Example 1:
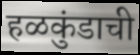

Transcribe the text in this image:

हळकुंडाची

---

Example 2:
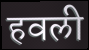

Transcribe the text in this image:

हवली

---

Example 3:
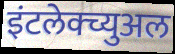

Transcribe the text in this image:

इंटलेक्च्युअल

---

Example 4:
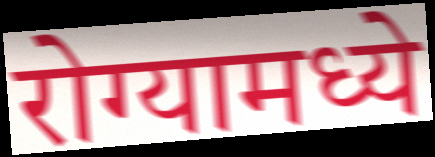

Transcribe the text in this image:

रोग्यामध्ये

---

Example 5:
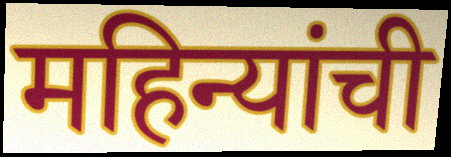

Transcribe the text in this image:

महिन्यांची